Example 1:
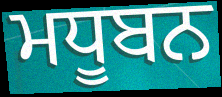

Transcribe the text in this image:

ਮਧੂਬਨ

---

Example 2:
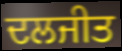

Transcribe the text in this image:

ਦਲਜੀਤ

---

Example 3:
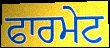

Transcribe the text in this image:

ਫਾਰਮੇਟ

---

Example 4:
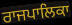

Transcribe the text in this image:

ਰਾਜਪਾਲਿਕਾ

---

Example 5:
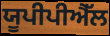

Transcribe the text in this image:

ਯੂਪੀਪੀਐੱਲ